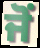
ਜੋਂ